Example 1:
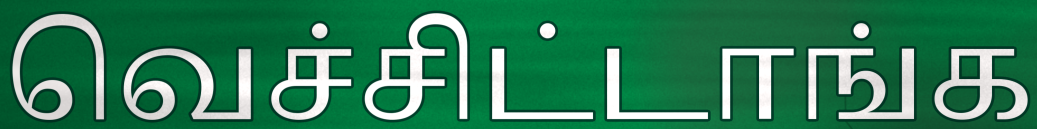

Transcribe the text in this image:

வெச்சிட்டாங்க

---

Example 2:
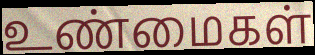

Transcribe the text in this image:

உண்மைகள்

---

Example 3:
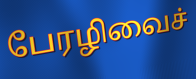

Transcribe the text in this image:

பேரழிவைச்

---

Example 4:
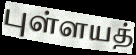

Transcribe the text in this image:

புள்ளயத்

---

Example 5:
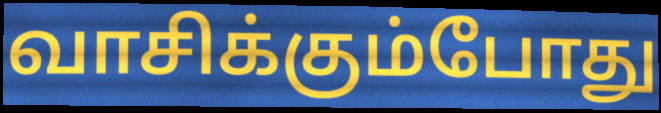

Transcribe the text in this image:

வாசிக்கும்போது